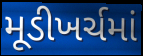
મૂડીખર્ચમાં